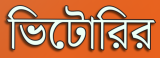
ভিটোরির